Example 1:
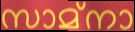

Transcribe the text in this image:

സാമ്നാ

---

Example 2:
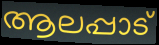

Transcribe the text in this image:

ആലപ്പാട്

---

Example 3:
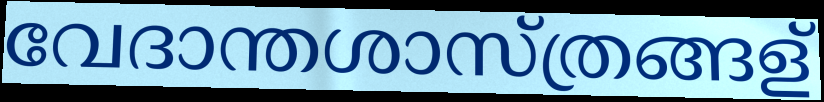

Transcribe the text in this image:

വേദാന്തശാസ്ത്രങ്ങള്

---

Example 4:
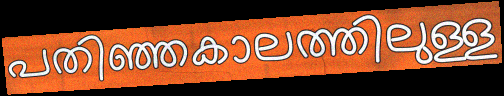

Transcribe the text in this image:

പതിഞ്ഞകാലത്തിലുള്ള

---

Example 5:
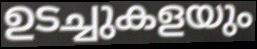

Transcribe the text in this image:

ഉടച്ചുകളയും